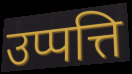
उप्पत्ति